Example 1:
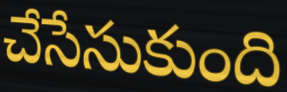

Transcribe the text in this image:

చేసేసుకుంది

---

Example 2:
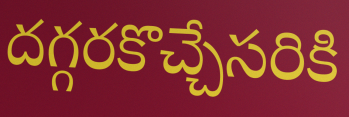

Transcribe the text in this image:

దగ్గరకొచ్చేసరికి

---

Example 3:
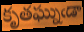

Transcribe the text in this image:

కృతఘ్నుఁడా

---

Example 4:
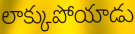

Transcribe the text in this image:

లాక్కుపోయాడు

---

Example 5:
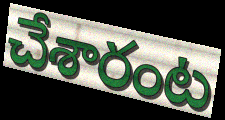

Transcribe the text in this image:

చేశారంట